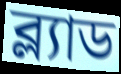
ব্ল্যাড